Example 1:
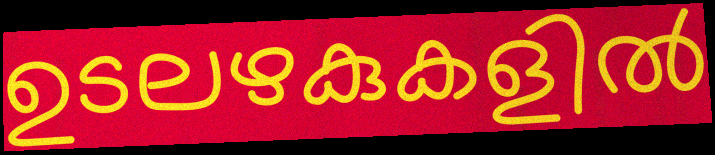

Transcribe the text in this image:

ഉടലഴകുകളിൽ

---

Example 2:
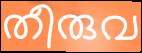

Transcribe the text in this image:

തീരുവ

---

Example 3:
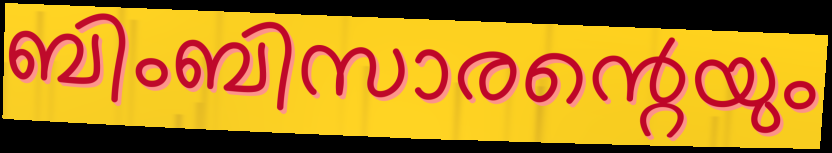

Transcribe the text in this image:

ബിംബിസാരന്റെയും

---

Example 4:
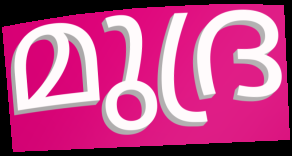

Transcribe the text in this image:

മുദ്ര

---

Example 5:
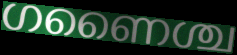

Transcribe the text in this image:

ഗണൈശ്ച